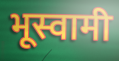
भूस्वामी